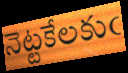
నెట్టకేలకుఁ